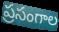
ప్రసంగాల